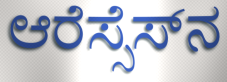
ಆರೆಸ್ಸೆಸ್‌ನ